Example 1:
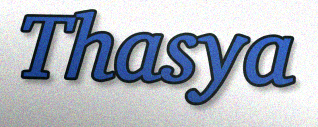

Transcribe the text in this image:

Thasya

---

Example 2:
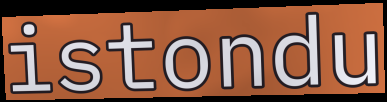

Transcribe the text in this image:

istondu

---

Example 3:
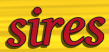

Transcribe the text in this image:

sires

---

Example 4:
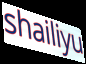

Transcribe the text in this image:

shailiyu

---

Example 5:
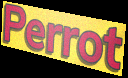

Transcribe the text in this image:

Perrot